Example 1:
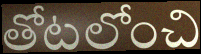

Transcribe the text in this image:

తోటలోంచి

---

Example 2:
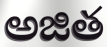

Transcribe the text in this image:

అజిత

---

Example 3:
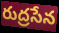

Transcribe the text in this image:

రుద్రసేన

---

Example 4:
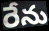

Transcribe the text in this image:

రేను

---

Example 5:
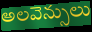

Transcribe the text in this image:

అలవెన్సులు